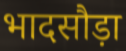
भादसौड़ा